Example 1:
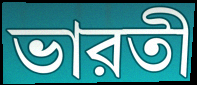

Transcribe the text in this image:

ভারতী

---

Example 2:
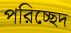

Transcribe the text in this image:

পরিচ্ছেদ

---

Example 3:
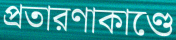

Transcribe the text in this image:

প্রতারণাকাণ্ডে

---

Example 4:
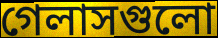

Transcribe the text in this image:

গেলাসগুলো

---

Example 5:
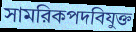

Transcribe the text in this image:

সামরিকপদবিযুক্ত